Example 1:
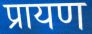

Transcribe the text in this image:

प्रायण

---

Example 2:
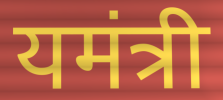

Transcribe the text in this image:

यमंत्री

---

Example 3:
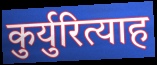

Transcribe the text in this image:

कुर्युरित्याह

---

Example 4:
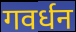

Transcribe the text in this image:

गवर्धन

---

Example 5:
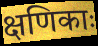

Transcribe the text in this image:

क्षणिकाः